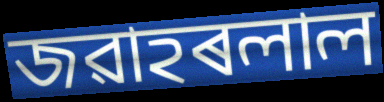
জৱাহৰলাল